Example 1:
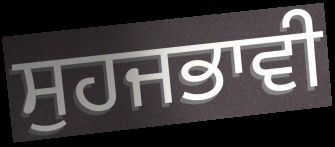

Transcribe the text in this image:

ਸੁਹਜਭਾਵੀ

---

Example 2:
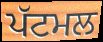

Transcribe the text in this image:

ਪੱਟਮਲ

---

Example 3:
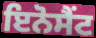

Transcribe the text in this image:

ਇਨੋਸੈਂਟ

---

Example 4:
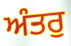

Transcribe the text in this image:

ਅੰਤਰੁ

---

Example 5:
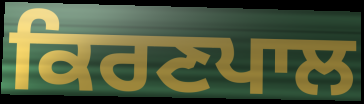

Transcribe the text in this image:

ਕਿਰਣਪਾਲ